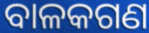
ବାଳକଗଣ